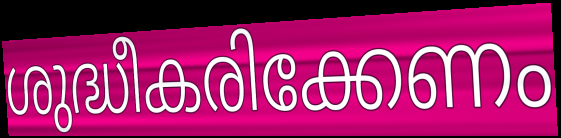
ശുദ്ധീകരിക്കേണം